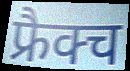
फ्रैक्च